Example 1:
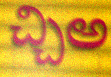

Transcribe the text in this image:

చ్చిఅ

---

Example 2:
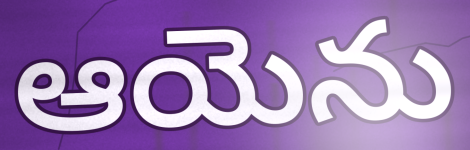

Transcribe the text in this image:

ఆయెను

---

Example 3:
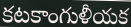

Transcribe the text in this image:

కటకాంగుళీయక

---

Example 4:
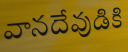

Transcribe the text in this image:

వానదేవుడికి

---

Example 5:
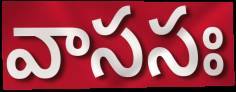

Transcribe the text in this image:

వాససః